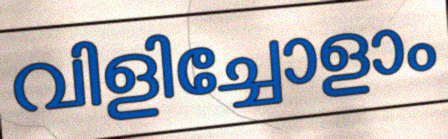
വിളിച്ചോളാം